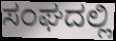
ಸಂಘದಲ್ಲಿ